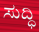
ಸುದ್ಧಿ